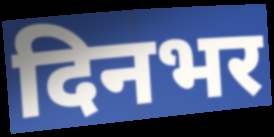
दिनभर